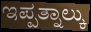
ಇಪ್ಪತ್ನಾಲ್ಕು